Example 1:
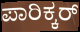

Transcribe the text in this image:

ಪಾರಿಕ್ಕರ್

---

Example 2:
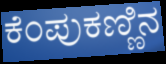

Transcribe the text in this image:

ಕೆಂಪುಕಣ್ಣಿನ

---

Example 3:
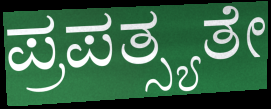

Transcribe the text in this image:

ಪ್ರಪತ್ಸ್ಯತೇ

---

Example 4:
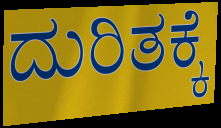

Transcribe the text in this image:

ದುರಿತಕ್ಕೆ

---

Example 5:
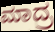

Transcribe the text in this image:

ಮಾದ್ರ